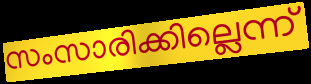
സംസാരിക്കില്ലെന്ന്